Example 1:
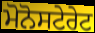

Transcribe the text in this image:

ਮੋਨੋਸਟੇਰੇਟ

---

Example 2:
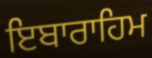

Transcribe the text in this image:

ਇਬਾਰਾਹਿਮ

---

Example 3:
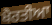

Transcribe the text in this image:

ਖੈਰਤੀਆ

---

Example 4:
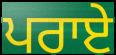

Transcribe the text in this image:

ਪਰਾਏ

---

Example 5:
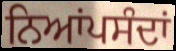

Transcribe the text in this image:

ਨਿਆਂਪਸੰਦਾਂ